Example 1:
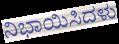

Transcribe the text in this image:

ನಿಭಾಯಿಸಿದಳು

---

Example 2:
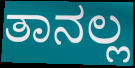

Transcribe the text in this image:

ತಾನಲ್ಲ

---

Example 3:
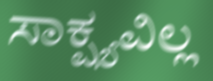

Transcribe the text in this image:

ಸಾಕ್ಷ್ಯವಿಲ್ಲ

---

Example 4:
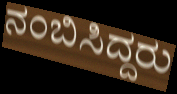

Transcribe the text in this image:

ನಂಬಿಸಿದ್ದರು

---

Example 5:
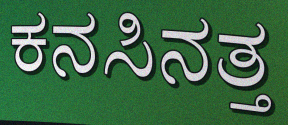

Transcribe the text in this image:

ಕನಸಿನತ್ತ